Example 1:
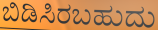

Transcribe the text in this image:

ಬಿಡಿಸಿರಬಹುದು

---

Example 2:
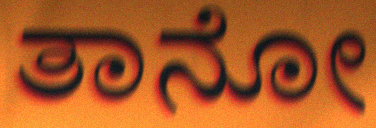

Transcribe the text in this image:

ತಾನೋ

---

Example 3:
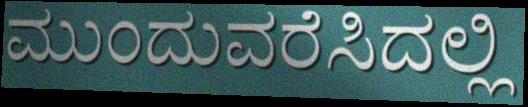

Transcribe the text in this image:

ಮುಂದುವರೆಸಿದಲ್ಲಿ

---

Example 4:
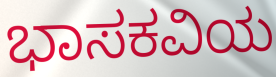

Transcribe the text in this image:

ಭಾಸಕವಿಯ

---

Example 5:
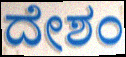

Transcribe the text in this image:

ದೇಶಂ